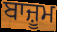
ਬਾਜ਼ੂਮ